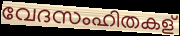
വേദസംഹിതകള്